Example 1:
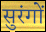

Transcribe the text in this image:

सुरंगों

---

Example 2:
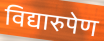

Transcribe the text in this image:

विद्यारुपेण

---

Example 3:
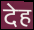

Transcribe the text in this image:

देह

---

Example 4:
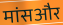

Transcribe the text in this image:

मांसऔर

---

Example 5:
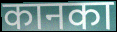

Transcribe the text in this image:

कानका